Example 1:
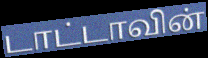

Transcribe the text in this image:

டாட்டாவின்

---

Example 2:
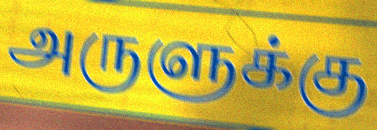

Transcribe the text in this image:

அருளுக்கு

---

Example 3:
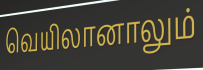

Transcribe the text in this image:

வெயிலானாலும்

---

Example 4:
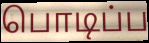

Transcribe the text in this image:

பொடிப்ப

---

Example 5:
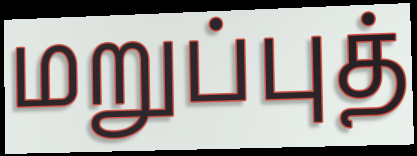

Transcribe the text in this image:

மறுப்புத்